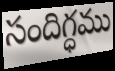
సందిగ్ధము